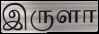
இருளா